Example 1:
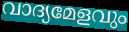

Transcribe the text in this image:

വാദ്യമേളവും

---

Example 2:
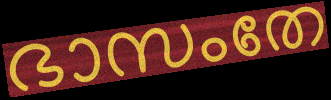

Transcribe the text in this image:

ഭാസംതേ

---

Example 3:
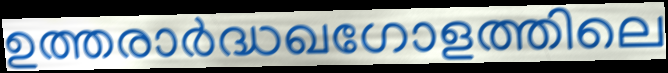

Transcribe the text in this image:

ഉത്തരാർദ്ധഖഗോളത്തിലെ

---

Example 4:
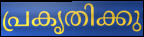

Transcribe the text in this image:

പ്രകൃതിക്കു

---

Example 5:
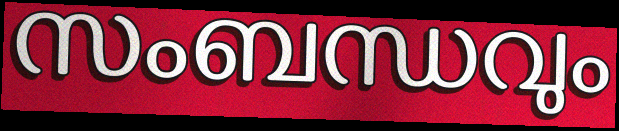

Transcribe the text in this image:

സംബന്ധവും